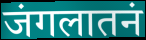
जंगलातनं